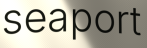
seaport